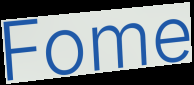
Fome